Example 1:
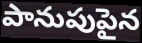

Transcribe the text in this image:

పానుపుపైన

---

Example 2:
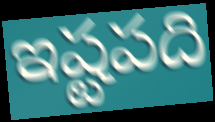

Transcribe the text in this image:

ఇష్టపది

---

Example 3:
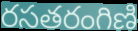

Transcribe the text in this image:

రసతరంగిణి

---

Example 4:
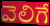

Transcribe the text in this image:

వెలిగే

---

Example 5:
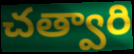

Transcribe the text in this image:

చత్వారి